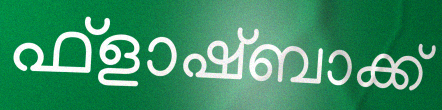
ഫ്ളാഷ്ബാക്ക്